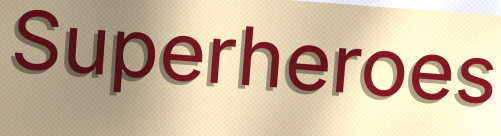
Superheroes